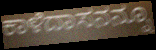
ಕಾಳಿದಾಸನನ್ನೂ